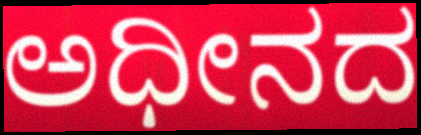
ಅಧೀನದ